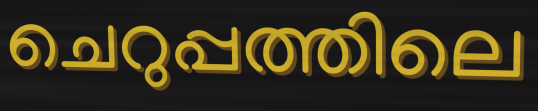
ചെറുപ്പത്തിലെ